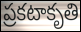
ప్రకటాకృతి